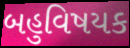
બહુવિષયક